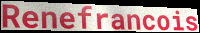
Renefrancois